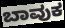
ಬಾವುಕ